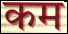
कम